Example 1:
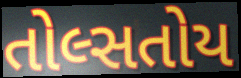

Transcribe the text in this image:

તોલ્સતોય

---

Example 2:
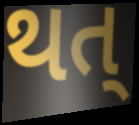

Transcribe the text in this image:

થત્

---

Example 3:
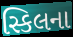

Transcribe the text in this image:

સ્કિલના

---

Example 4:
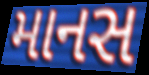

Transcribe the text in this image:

માનસ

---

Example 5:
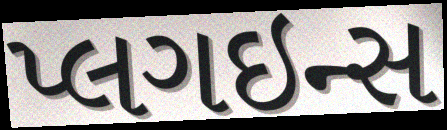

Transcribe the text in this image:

પ્લગઇન્સ